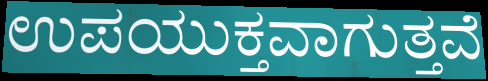
ಉಪಯುಕ್ತವಾಗುತ್ತವೆ